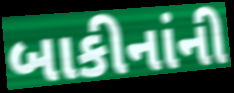
બાકીનાંની